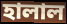
হালাল